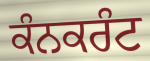
ਕੰਨਕਰੰਟ